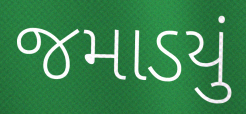
જમાડયું